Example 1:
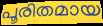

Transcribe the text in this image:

പൂരിതമായ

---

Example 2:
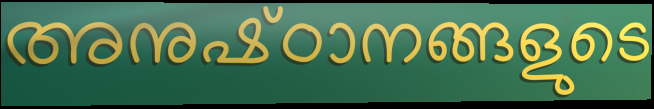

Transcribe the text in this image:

അനുഷ്‌ഠാനങ്ങളുടെ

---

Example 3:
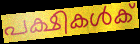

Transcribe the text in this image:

പക്ഷികൾക്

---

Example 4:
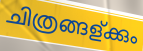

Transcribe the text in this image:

ചിത്രങ്ങള്ക്കും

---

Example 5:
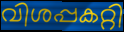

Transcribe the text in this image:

വിശപ്പകറ്റി